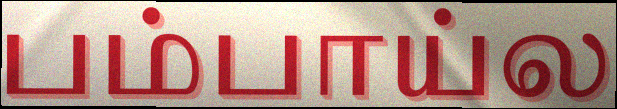
பம்பாய்ல